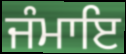
ਜੰਮਾਇ